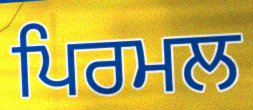
ਪਿਰਮਲ